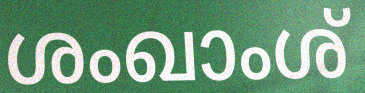
ശംഖാംശ്